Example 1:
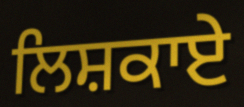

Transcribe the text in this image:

ਲਿਸ਼ਕਾਏ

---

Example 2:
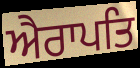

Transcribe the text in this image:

ਐਰਾਪਤਿ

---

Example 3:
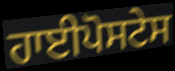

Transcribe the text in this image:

ਹਾਈਪੋਸਟੇਸ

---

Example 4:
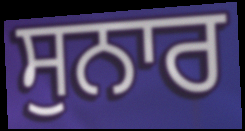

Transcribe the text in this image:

ਸੁਨਾਰ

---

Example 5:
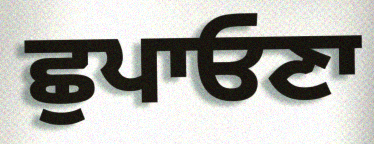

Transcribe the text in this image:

ਛੁਪਾਓਣਾ